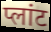
प्‍लांट